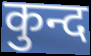
कुन्द